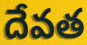
దేవత